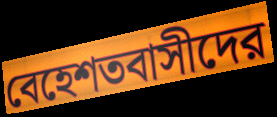
বেহেশতবাসীদের